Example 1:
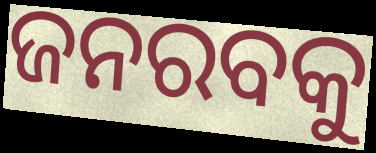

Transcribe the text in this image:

ଜନରବକୁ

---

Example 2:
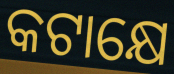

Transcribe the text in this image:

କଟାକ୍ଷେ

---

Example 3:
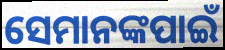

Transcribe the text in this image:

ସେମାନଙ୍କପାଇଁ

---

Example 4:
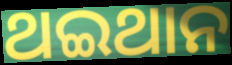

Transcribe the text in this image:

ଥଇଥାନ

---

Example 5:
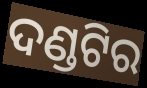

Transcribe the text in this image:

ଦଣ୍ଡଟିର